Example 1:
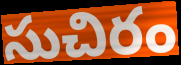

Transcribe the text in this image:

సుచిరం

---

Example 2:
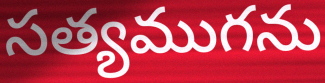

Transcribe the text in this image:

సత్యముగను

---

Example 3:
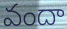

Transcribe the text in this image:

వందా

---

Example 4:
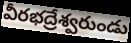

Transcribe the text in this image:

వీరభద్రేశ్వరుండు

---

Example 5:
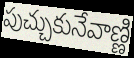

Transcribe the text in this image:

పుచ్చుకునేవాణ్ణి